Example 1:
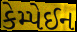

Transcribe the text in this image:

કેમ્પેઈન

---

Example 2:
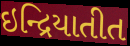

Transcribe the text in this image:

ઇન્દ્રિયાતીત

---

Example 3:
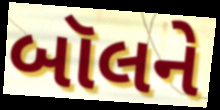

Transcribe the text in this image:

બૉલને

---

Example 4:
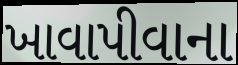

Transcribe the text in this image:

ખાવાપીવાના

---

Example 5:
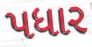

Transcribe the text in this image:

પધાર